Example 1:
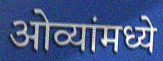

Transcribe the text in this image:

ओव्यांमध्ये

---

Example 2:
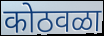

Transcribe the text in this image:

कोठवळा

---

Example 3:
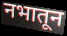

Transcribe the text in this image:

नभातून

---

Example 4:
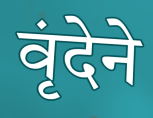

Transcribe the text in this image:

वृंदेने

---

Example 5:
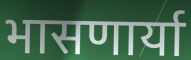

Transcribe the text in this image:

भासणार्या